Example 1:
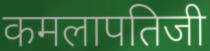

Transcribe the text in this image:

कमलापतिजी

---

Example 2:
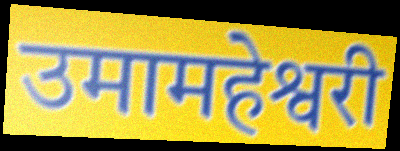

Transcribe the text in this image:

उमामहेश्वरी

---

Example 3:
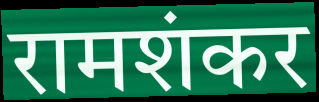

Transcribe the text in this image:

रामशंकर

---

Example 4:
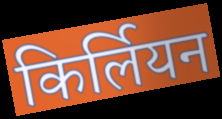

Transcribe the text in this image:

किर्लियन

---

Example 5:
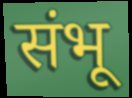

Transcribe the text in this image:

संभू